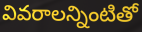
వివరాలన్నింటితో